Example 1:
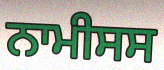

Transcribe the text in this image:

ਨਾਮੀਸਸ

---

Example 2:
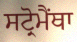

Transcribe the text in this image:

ਸਟ੍ਰੋਮੈਂਥਾ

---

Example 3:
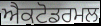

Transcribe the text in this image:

ਐਕਟੋਡਰਮਲ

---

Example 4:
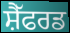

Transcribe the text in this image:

ਸ਼ੈੱਫਰਡ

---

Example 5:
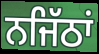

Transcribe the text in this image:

ਨਜਿੱਠਾਂ